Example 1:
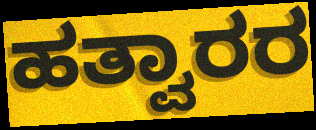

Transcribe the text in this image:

ಹತ್ವಾರರ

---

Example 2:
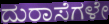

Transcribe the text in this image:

ದುರಾಸೆಗಳೇ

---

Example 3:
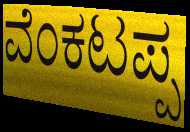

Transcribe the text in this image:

ವೆಂಕಟಪ್ಪ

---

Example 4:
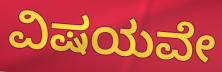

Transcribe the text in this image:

ವಿಷಯವೇ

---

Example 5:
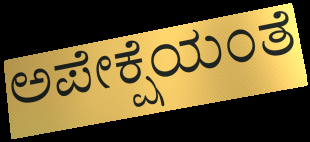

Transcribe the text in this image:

ಅಪೇಕ್ಷೆಯಂತೆ